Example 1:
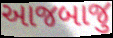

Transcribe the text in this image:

આજબાજુ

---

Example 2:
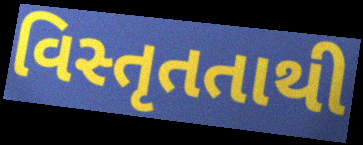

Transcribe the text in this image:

વિસ્તૃતતાથી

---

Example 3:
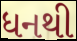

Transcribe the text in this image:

ધનથી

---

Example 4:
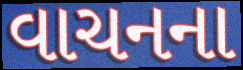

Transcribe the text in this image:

વાચનના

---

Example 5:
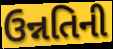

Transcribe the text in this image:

ઉન્નતિની